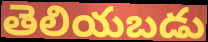
తెలియబడు